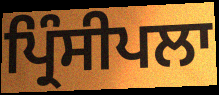
ਪ੍ਰਿੰਸੀਪਲਾ